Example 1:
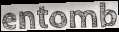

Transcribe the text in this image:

entomb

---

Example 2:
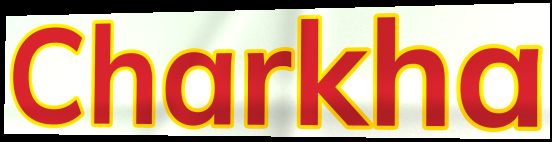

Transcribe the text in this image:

Charkha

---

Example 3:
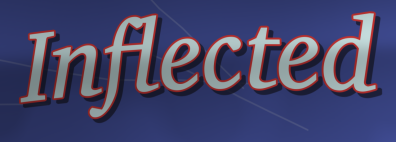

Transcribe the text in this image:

Inflected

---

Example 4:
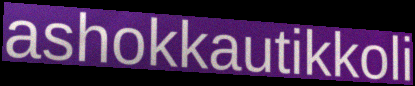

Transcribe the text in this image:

ashokkautikkoli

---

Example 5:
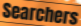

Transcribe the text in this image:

Searchers